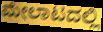
ಮೇಲಾಟದಲ್ಲಿ